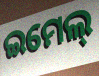
ଇମେଲ୍